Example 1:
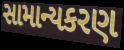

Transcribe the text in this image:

સામાન્યકરણ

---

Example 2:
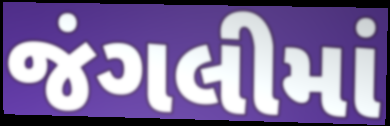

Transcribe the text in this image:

જંગલીમાં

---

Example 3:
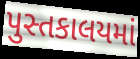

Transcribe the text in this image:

પુસ્તકાલયમાં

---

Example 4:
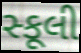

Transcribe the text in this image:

સ્કૂલી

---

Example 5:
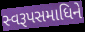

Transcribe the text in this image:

સ્વરૂપસમાધિને